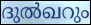
ദുൽഖറും